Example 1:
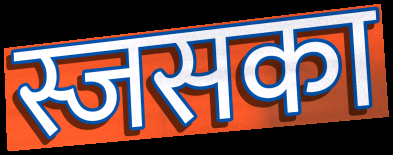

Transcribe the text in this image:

स्जसका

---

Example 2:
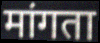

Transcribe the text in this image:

मांगता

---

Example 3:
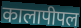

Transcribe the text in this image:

कालापीपल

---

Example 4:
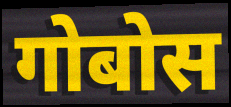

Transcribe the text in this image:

गोबोस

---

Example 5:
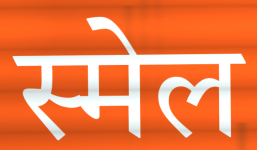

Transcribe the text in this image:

स्‍मेल